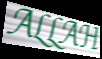
ALLAH